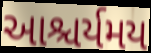
આશ્ચર્યમય